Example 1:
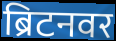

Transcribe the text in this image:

ब्रिटनवर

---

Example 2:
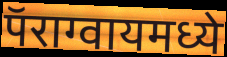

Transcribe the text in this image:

पॅराग्वायमध्ये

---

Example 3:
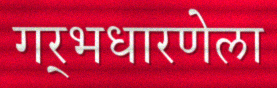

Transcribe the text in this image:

गर्भधारणेला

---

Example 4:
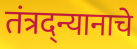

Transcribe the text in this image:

तंत्रद्न्यानाचे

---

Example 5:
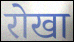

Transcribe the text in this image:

रोखा